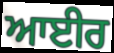
ਆਈਰ